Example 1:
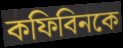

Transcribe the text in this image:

কফিবিনকে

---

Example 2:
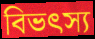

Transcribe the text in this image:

বিভৎস্য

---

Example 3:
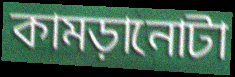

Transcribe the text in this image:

কামড়ানোটা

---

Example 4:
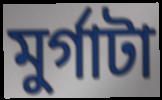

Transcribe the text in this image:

মুর্গাটা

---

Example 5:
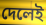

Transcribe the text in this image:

দেলেই